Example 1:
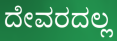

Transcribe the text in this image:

ದೇವರದಲ್ಲ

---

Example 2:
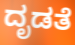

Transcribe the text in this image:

ದೃಡತೆ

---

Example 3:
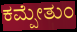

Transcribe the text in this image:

ಕಮ್ಪೇತುಂ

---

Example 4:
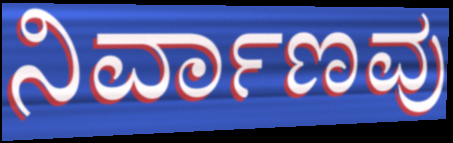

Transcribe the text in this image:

ನಿರ್ವಾಣವು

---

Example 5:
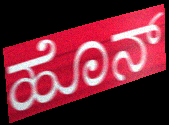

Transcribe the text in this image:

ಹೊನ್